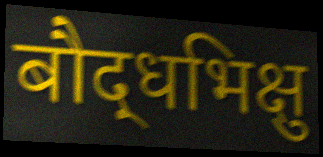
बौद्धभिक्षु